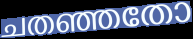
ചതഞ്ഞതോ